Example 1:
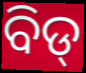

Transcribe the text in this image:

ବିଡ୍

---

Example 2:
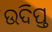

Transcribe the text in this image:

ଉଦିପ୍ତ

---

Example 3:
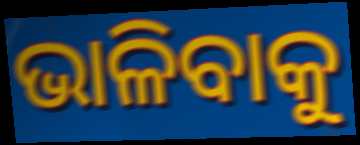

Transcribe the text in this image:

ଭାଳିବାକୁ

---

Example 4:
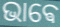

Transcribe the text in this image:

ଭାଵେ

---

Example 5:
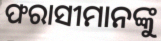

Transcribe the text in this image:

ଫରାସୀମାନଙ୍କୁ